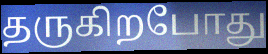
தருகிறபோது